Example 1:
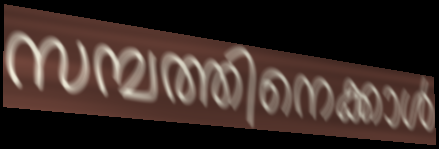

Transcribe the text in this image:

സമ്പത്തിനെക്കാൾ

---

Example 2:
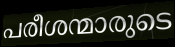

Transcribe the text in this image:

പരീശന്മാരുടെ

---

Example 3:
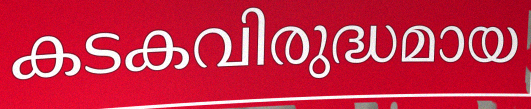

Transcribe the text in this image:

കടകവിരുദ്ധമായ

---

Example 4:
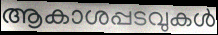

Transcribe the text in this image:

ആകാശപ്പടവുകൾ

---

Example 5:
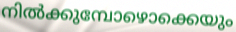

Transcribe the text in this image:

നിൽക്കുമ്പോഴൊക്കെയും